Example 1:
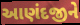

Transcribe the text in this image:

આણંદજીને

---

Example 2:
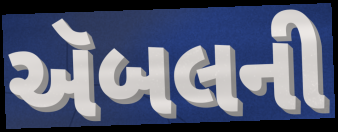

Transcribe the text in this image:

ઍબલની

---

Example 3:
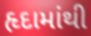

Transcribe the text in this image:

હૃદામાંથી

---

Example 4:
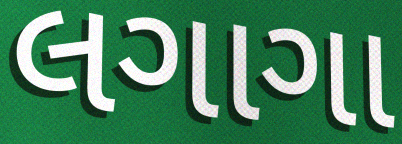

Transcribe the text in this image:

લગાગા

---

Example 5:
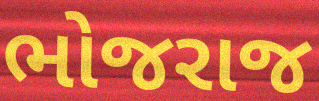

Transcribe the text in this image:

ભોજરાજ